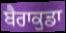
ਬੈਰਾਕੁਡਾ